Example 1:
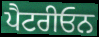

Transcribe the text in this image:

ਪੈਟਰੀਓਨ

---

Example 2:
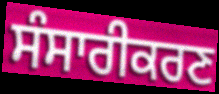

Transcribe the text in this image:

ਸੰਸਾਰੀਕਰਣ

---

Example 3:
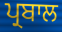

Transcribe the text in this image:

ਪ੍ਰਬਾਲ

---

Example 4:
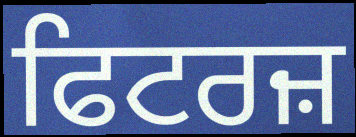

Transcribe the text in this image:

ਫਿਟਰਜ਼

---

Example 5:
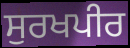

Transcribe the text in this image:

ਸੁਰਖਪੀਰ